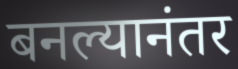
बनल्यानंतर